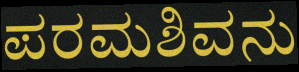
ಪರಮಶಿವನು